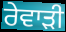
ਰੇਵਾਡ਼ੀ